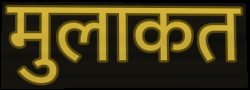
मुलाकत